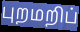
புறமறிப்